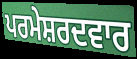
ਪਰਮੇਸ਼ਰਦਵਾਰ